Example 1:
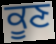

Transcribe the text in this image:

ਕੂਣ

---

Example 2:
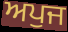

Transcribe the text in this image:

ਅਪੁਜ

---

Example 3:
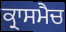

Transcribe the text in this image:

ਕ੍ਰਾਸਮੈਚ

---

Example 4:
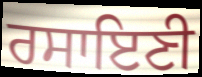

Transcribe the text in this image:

ਰਸਾਇਣੀ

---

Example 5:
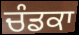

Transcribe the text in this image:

ਚੰਡਕਾ